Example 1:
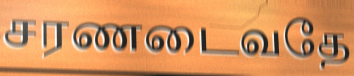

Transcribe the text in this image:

சரணடைவதே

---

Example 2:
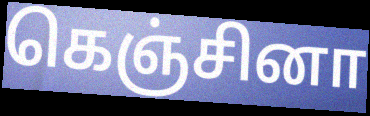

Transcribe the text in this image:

கெஞ்சினா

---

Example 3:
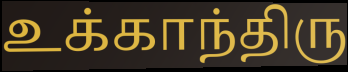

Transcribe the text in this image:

உக்காந்திரு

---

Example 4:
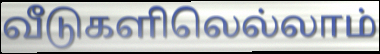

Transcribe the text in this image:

வீடுகளிலெல்லாம்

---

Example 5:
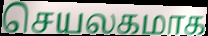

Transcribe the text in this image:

செயலகமாக